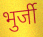
भुर्जी